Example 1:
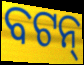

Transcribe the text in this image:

ବଟନ୍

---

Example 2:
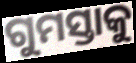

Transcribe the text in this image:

ଗୁମସ୍ତାକୁ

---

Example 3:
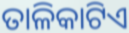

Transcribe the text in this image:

ତାଳିକାଟିଏ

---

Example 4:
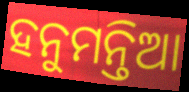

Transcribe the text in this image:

ହନୁମନ୍ତିଆ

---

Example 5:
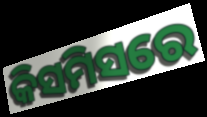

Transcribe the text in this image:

କିସମିସରେ